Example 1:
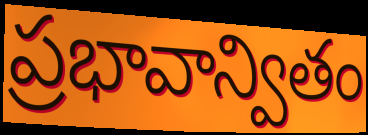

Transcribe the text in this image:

ప్రభావాన్వితం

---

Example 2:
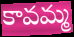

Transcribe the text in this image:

కావమ్మ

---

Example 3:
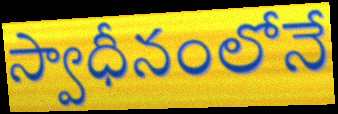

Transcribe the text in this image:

స్వాధీనంలోనే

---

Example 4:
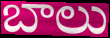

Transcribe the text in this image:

బాలు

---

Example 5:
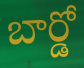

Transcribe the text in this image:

బార్డో